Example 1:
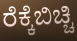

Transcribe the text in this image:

ರೆಕ್ಕೆಬಿಚ್ಚಿ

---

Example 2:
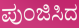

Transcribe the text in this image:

ಪುಂಜಿಸಿದ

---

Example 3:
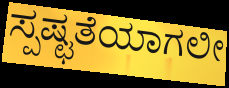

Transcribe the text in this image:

ಸ್ಪಷ್ಟತೆಯಾಗಲೀ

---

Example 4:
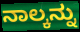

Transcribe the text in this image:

ನಾಲ್ಕನ್ನು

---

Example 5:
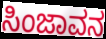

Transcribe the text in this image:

ಸಿಂಜಾವನ